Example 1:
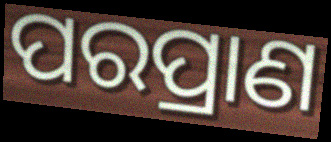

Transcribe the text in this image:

ପରପ୍ରାଣ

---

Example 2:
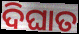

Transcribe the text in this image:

ଦିଘାତ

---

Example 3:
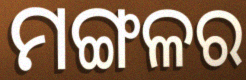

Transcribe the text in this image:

ମଙ୍ଗଳର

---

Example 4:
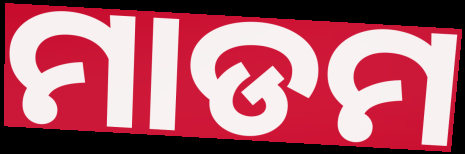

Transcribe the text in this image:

ମାଡମ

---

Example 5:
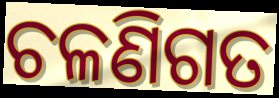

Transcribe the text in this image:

ଚଳଣିଗତ